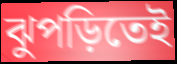
ঝুপড়িতেই